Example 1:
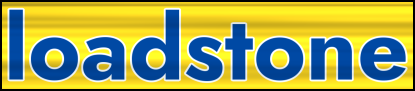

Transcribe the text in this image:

loadstone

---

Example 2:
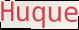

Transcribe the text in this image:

Huque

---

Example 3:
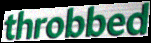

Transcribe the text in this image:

throbbed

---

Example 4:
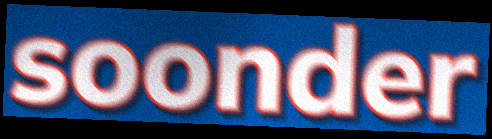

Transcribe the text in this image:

soonder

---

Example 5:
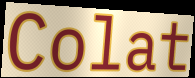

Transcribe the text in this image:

Colat